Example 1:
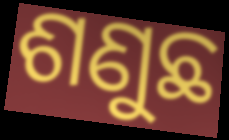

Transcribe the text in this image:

ଶଣୁଛ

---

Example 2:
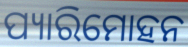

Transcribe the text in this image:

ପ୍ୟାରିମୋହନ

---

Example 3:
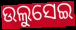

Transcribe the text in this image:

ଉଲୁସେଇ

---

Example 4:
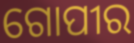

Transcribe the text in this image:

ଗୋପୀର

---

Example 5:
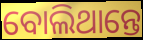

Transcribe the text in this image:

ବୋଲିଥାନ୍ତେ